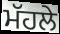
ਮੱਹਲੇ